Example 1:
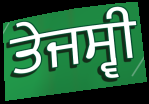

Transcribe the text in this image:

ਤੇਜਸ੍ਵੀ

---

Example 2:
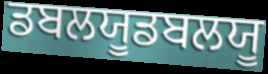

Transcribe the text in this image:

ਡਬਲਯੂਡਬਲਯੂ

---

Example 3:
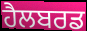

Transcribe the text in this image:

ਹੈਲਬਰਡ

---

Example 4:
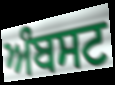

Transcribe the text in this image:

ਅੰਬਸਟ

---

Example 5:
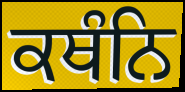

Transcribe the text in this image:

ਕਥੰਨਿ